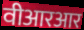
वीआरआर